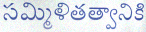
సమ్మిళితత్వానికి